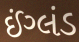
ઈંગ્લંડ